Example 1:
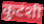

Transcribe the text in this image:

कुटंशी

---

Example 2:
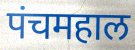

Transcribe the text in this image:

पंचमहाल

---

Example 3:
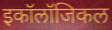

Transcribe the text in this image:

इकॉलॉजिकल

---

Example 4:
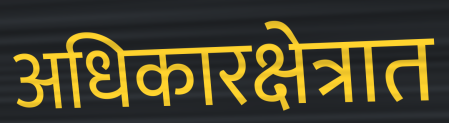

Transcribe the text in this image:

अधिकारक्षेत्रात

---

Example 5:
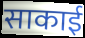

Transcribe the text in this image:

साकाई